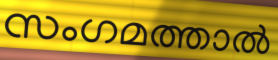
സംഗമത്താൽ